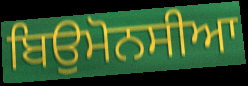
ਬਿਉਮੋਨਸੀਆ